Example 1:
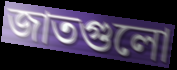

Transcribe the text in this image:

জাতগুলো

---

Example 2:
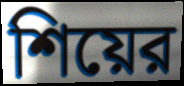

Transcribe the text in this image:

শিয়ের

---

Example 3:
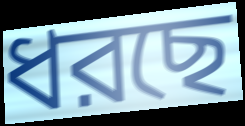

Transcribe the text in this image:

ধরছে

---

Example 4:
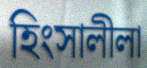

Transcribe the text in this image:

হিংসালীলা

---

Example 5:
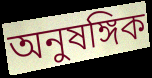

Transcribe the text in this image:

অনুষঙ্গিক